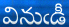
వినుఁడీ